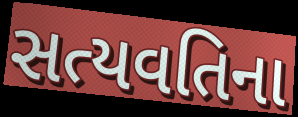
સત્યવતિના